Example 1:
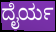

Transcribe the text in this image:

ದೈರ್ಯ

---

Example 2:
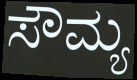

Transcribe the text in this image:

ಸೌಮ್ಯ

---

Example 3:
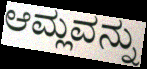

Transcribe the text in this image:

ಆಮ್ಲವನ್ನು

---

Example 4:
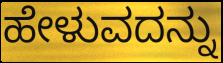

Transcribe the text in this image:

ಹೇಳುವದನ್ನು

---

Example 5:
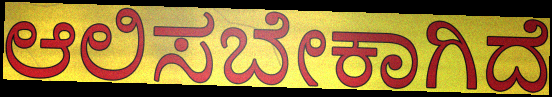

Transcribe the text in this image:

ಆಲಿಸಬೇಕಾಗಿದೆ